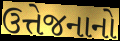
ઉત્તેજનાનો